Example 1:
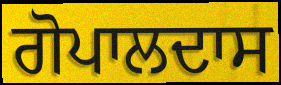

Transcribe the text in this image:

ਗੋਪਾਲਦਾਸ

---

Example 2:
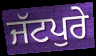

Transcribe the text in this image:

ਜੱਟਪੁਰੇ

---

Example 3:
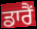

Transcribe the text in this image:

ਡਾਰੈਂ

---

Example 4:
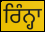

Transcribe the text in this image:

ਰਿੰਨ੍ਹਾ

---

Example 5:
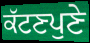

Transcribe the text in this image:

ਕੱਟਣਪੁਣੇ